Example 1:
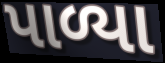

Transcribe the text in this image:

પાળ્યા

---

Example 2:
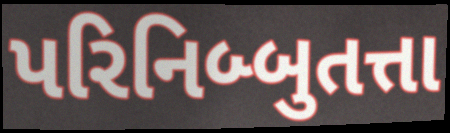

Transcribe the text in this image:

પરિનિબ્બુતત્તા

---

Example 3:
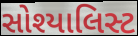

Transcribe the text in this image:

સોશ્યાલિસ્ટ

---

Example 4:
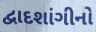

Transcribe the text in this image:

દ્વાદશાંગીનો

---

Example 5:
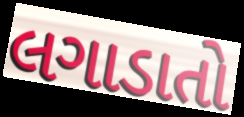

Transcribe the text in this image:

લગાડાતો